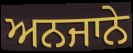
ਅਨਜਾਨੇ